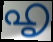
ഹൃ